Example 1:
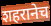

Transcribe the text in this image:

शहरानेच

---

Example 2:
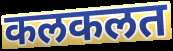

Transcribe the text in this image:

कलकलत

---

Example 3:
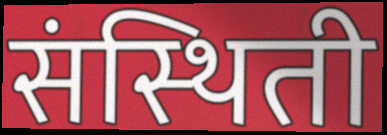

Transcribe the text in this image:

संस्थिती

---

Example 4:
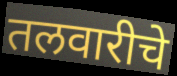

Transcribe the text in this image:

तलवारीचे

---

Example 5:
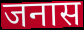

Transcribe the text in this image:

जनास